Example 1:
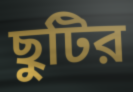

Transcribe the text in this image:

ছুটির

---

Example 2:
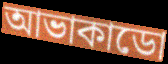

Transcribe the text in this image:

আভাকাডো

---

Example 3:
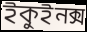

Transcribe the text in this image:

ইকুইনক্স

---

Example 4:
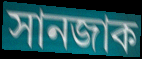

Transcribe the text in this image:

সানজাক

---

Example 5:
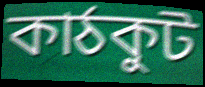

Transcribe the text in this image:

কাঠকুট